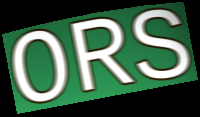
ORS